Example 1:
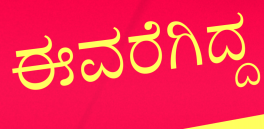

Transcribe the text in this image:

ಈವರೆಗಿದ್ದ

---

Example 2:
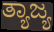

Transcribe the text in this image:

ತ್ಯಾಜ್ಯ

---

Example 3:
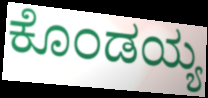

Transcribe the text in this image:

ಕೊಂಡಯ್ಯ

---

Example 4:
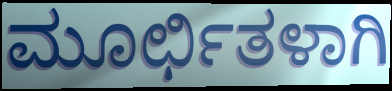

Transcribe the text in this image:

ಮೂರ್ಛಿತಳಾಗಿ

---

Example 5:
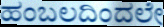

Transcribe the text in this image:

ಹಂಬಲದಿಂದಲೇ